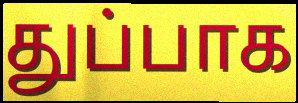
துப்பாக